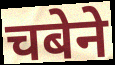
चबेने